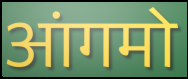
आंगमो